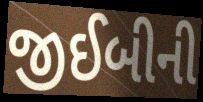
જીઈબીની